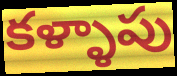
కళ్ళాపు